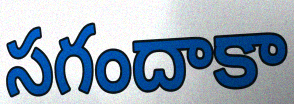
సగందాకా